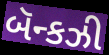
બૅન્કઝી